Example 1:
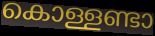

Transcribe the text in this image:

കൊള്ളണ്ടാ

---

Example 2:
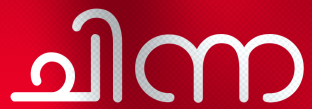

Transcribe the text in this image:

ചിന്ന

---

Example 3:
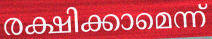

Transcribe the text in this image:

രക്ഷിക്കാമെന്ന്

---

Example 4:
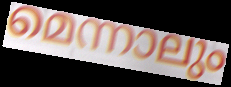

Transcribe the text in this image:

മെന്നാലും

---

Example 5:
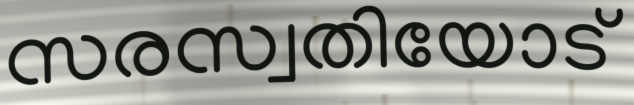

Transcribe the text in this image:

സരസ്വതിയോട്